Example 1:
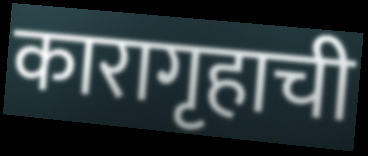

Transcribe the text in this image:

कारागृहाची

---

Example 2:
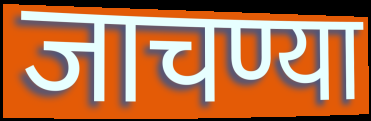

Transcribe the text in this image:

जाचण्या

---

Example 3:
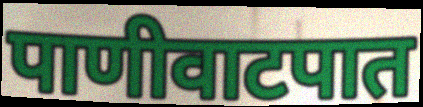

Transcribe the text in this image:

पाणीवाटपात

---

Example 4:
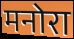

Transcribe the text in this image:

मनोरा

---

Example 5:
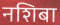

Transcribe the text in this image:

नशिबा